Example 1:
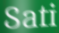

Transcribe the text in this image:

Sati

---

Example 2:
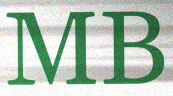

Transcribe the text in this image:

MB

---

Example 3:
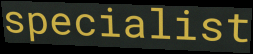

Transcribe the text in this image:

specialist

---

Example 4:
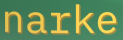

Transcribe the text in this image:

narke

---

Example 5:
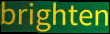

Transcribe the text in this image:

brighten